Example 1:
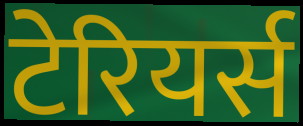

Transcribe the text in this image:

टेरियर्स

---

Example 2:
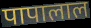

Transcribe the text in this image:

पापालाल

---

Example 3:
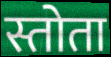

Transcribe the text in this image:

स्तोता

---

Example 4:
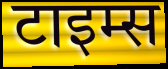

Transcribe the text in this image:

टाइम्‍स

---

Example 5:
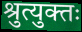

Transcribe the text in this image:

श्रुत्युक्तः